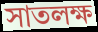
সাতলক্ষ